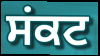
ਸਂਕਟ